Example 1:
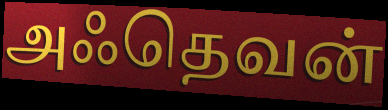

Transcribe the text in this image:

அஃதெவன்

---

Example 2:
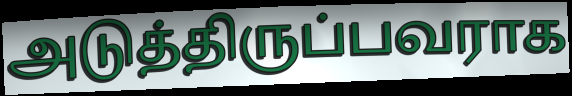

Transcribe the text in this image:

அடுத்திருப்பவராக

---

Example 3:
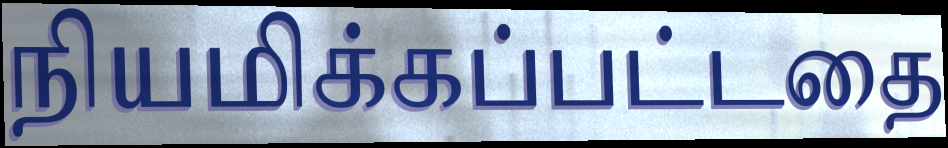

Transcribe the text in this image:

நியமிக்கப்பட்டதை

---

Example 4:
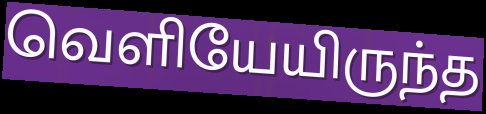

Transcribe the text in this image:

வெளியேயிருந்த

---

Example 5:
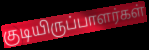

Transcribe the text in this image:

குடியிருப்பாளர்கள்